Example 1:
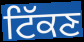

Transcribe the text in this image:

ਟਿੱਕਣ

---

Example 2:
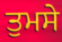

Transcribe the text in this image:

ਤੁਮਸੇ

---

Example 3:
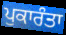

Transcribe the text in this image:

ਪੁਕਾਰੰਤਾ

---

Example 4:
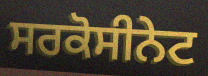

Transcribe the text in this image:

ਸਰਕੋਸੀਨੇਟ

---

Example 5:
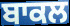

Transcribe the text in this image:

ਬਾਕਲ